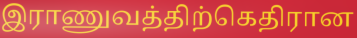
இராணுவத்திற்கெதிரான